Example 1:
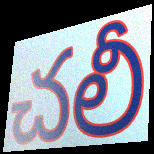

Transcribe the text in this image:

చలీ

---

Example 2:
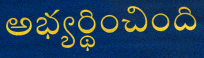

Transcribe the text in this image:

అభ్యర్థించింది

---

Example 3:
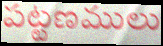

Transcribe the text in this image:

పట్టణములు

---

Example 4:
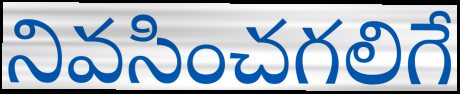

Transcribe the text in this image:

నివసించగలిగే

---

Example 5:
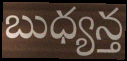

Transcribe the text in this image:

బుధ్యన్త